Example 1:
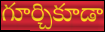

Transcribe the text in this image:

గూర్చికూడా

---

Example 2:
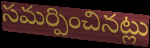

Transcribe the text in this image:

సమర్పించినట్లు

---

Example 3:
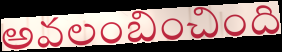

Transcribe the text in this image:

అవలంబించింది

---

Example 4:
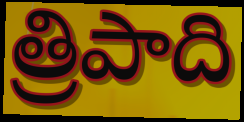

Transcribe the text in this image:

త్రిపాది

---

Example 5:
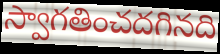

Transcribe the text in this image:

స్వాగతించదగినది